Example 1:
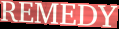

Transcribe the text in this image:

REMEDY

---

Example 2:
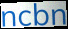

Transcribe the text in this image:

ncbn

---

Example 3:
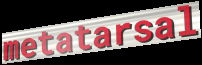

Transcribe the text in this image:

metatarsal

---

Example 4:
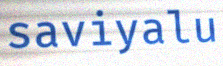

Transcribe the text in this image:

saviyalu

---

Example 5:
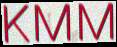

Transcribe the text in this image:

KMM